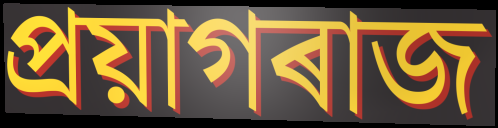
প্ৰয়াগৰাজ